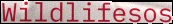
Wildlifesos